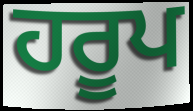
ਹਰੂਪ